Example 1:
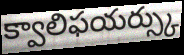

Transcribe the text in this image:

క్వాలిఫయర్స్కు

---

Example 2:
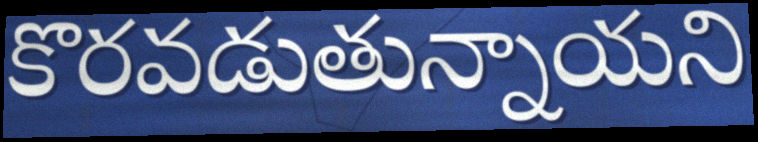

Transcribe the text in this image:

కొరవడుతున్నాయని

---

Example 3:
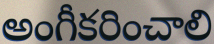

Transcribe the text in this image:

అంగీకరించాలి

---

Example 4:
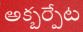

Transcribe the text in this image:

అక్బర్పేట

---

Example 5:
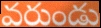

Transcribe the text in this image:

వరుండు